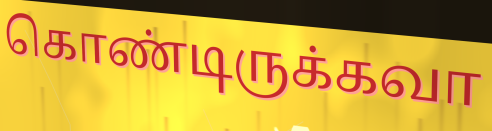
கொண்டிருக்கவா